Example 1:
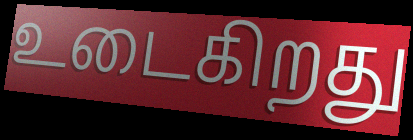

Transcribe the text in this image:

உடைகிறது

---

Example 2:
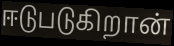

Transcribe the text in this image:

ஈடுபடுகிறான்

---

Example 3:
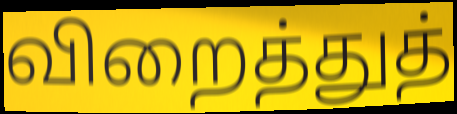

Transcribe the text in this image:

விறைத்துத்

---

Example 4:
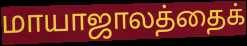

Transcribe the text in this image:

மாயாஜாலத்தைக்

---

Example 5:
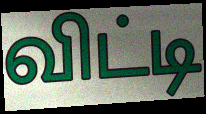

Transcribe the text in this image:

விட்டி